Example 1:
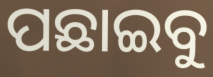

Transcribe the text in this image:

ପଛାଇବୁ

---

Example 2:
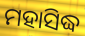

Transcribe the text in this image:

ମହାସିଦ୍ଧ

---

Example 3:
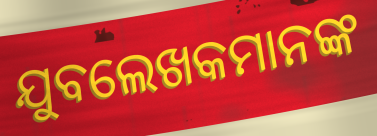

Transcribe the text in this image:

ଯୁବଲେଖକମାନଙ୍କ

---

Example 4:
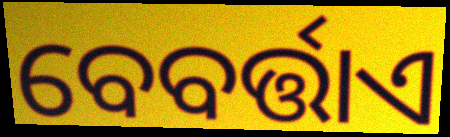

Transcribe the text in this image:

ବେବର୍ତ୍ତାଏ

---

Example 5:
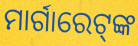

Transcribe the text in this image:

ମାର୍ଗାରେଟ୍‍ଙ୍କ